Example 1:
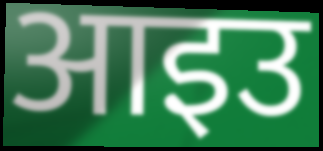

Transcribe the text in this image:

आइउ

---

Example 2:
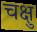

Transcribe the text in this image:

चक्षु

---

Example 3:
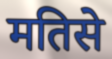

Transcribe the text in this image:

मतिसे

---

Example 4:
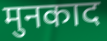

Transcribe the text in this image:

मुनकाद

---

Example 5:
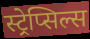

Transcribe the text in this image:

स्ट्रेप्सिल्स